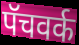
पॅचवर्क